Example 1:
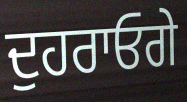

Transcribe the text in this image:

ਦੁਹਰਾਓਗੇ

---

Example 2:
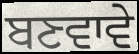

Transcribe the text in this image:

ਬਣਵਾਵੇ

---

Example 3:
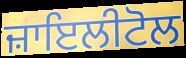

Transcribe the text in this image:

ਜ਼ਾਇਲੀਟੋਲ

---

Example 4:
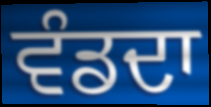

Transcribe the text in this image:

ਵੰਡਦਾ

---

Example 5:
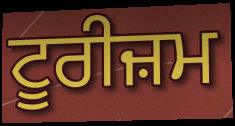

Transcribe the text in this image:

ਟੂਰੀਜ਼ਮ